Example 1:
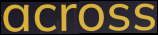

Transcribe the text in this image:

across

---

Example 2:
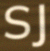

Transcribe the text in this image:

SJ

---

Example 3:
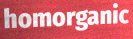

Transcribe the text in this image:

homorganic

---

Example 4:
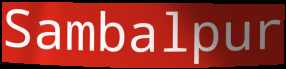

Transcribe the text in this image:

Sambalpur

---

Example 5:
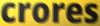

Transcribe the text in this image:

crores